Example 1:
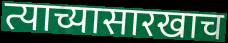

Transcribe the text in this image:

त्याच्यासारखाच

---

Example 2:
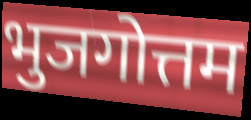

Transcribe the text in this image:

भुजगोत्तम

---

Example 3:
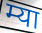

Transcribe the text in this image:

म्या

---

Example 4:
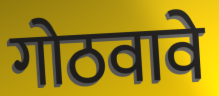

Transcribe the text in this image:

गोठवावे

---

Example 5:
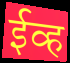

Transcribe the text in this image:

ईव्ह